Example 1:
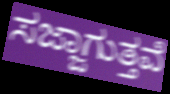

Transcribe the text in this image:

ಸಜ್ಜಾಗುತ್ತವೆ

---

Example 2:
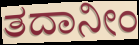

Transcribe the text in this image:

ತದಾನೀಂ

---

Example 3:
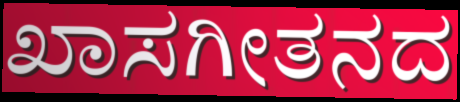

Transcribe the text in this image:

ಖಾಸಗೀತನದ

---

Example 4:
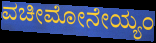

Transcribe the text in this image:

ವಚೀಮೋನೇಯ್ಯಂ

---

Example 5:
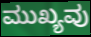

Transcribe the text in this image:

ಮುಖ್ಯವು